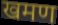
खमण